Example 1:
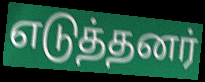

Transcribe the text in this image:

எடுத்தனர்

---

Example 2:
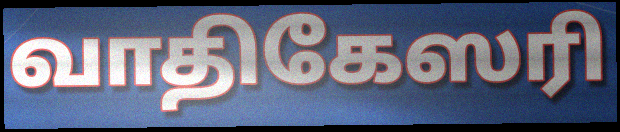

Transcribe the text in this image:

வாதிகேஸரி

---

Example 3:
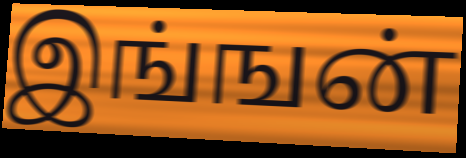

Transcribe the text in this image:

இங்ஙன்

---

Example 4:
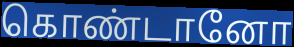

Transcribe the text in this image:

கொண்டானோ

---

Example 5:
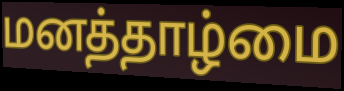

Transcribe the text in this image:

மனத்தாழ்மை